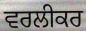
ਵਰਲੀਕਰ